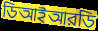
ডিআইআরডি